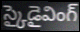
స్కైడైవింగ్